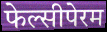
फेल्सीपेरम